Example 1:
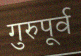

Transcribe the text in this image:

गुरुपूर्व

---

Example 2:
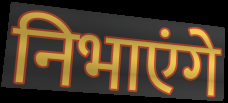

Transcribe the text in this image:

निभाएंगे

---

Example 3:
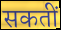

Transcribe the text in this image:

सकतीं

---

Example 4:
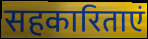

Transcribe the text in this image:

सहकारिताएं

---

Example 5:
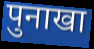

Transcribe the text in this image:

पुनाखा